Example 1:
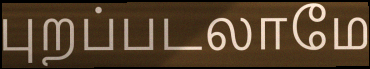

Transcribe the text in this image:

புறப்படலாமே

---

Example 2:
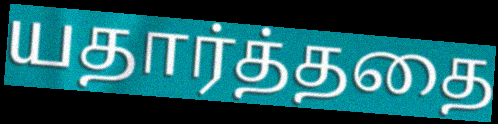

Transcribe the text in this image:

யதார்த்ததை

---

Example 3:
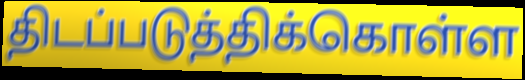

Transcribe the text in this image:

திடப்படுத்திக்கொள்ள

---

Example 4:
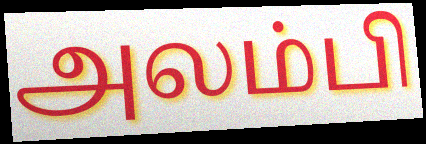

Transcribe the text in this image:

அலம்பி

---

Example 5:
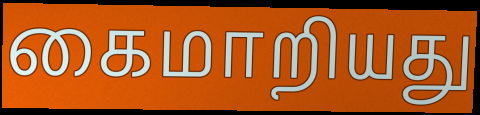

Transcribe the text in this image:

கைமாறியது